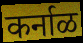
कर्नाळ